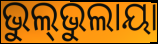
ଭୁଲ୍‌ଭୁଲାୟା